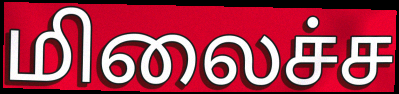
மிலைச்ச